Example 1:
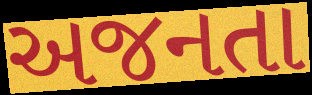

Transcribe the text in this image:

અજનતા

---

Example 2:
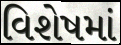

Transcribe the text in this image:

વિશેષમાં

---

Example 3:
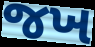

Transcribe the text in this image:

જખ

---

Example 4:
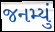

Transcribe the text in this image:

જનમ્યું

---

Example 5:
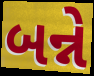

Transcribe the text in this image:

બન્ને